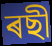
ৰছী